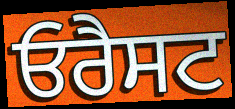
ਓਰੈਸਟ